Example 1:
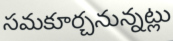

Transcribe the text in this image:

సమకూర్చనున్నట్లు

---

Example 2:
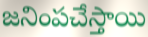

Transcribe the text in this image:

జనింపచేస్తాయి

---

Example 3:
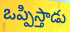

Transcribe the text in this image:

ఒప్పిస్తాడు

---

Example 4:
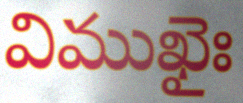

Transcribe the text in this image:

విముఖైః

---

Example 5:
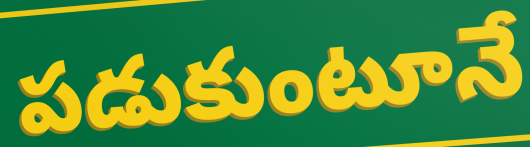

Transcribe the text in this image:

పడుకుంటూనే